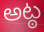
అట్ఠ